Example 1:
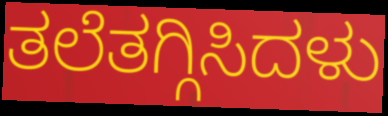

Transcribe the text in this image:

ತಲೆತಗ್ಗಿಸಿದಳು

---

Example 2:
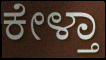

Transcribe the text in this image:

ಕೇಳ್ತಾ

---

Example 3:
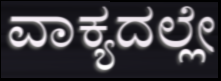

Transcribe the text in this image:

ವಾಕ್ಯದಲ್ಲೇ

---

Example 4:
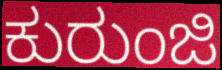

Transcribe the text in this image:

ಕುರುಂಜಿ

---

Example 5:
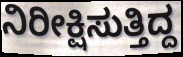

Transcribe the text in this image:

ನಿರೀಕ್ಷಿಸುತ್ತಿದ್ದ